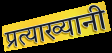
प्रत्याख्यानी